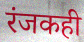
रंजकही